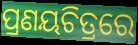
ପ୍ରଣୟଚିତ୍ରରେ